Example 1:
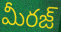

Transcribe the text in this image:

మీరజ్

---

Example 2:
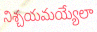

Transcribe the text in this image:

నిశ్చయమయ్యేలా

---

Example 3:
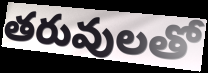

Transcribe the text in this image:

తరువులతో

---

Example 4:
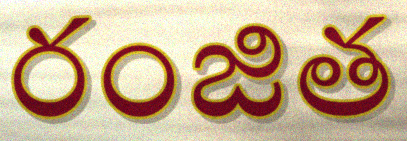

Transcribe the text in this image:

రంజిత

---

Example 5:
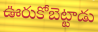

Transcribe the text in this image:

ఊరుకోబెట్టాడు